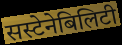
सस्टेनेबिलिटी